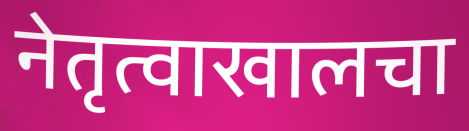
नेतृत्वाखालचा